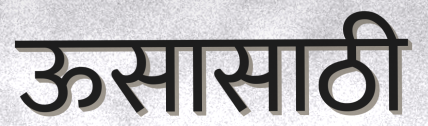
ऊसासाठी